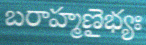
బరాహ్మణైభ్యః